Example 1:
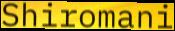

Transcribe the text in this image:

Shiromani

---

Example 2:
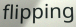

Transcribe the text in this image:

flipping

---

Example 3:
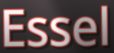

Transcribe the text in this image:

Essel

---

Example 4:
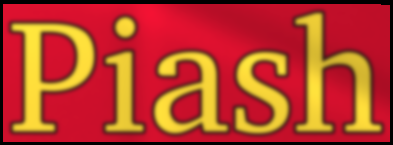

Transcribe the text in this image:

Piash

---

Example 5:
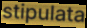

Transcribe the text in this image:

stipulata